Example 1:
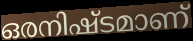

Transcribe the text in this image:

ഒരനിഷ്ടമാണ്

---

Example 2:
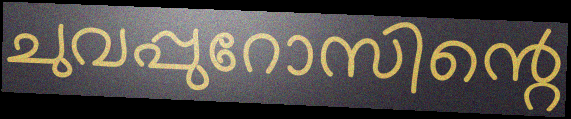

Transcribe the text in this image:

ചുവപ്പുറോസിന്റെ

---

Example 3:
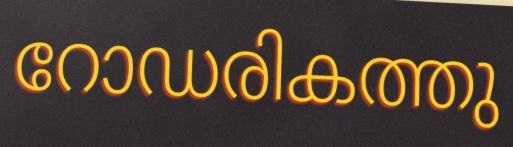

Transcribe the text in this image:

റോഡരികത്തു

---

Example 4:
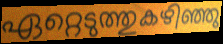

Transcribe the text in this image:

ഏറ്റെടുത്തുകഴിഞ്ഞു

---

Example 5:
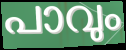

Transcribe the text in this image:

പാവും